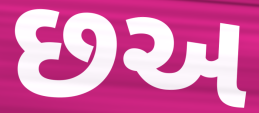
છઅ